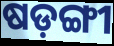
ଷଡ଼ଙ୍ଗୀ